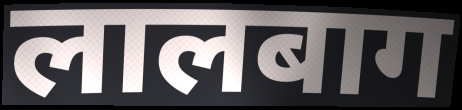
लालबाग